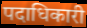
पदाधिकारी